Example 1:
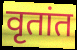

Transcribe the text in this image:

वृतांत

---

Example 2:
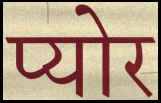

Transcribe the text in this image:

प्योर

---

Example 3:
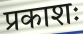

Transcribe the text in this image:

प्रकाशः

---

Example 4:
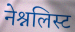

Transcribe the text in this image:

नेश्नलिस्ट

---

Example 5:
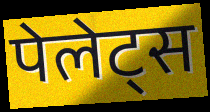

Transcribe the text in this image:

पेलेट्स